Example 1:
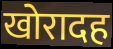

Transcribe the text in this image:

खोरादह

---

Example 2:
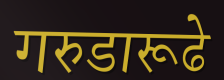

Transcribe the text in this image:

गरुडारूढे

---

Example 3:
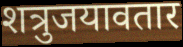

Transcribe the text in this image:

शत्रुजयावतार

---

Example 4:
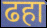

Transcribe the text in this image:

ढहा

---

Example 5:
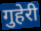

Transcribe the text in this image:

गुहेरी